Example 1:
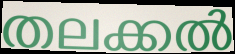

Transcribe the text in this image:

തലക്കൽ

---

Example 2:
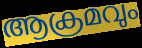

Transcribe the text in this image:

ആക്രമവും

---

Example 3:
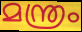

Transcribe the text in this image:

മന്ത്രം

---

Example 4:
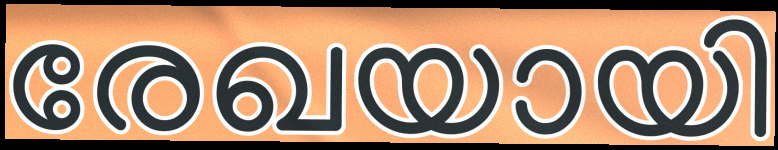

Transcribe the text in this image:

രേഖയായി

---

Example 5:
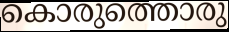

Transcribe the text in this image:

കൊരുത്തൊരു